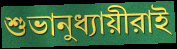
শুভানুধ্যায়ীরাই